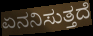
ಏನನಿಸುತ್ತದೆ